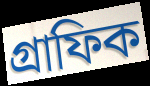
গ্ৰাফিক